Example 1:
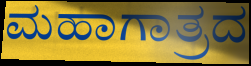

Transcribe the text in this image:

ಮಹಾಗಾತ್ರದ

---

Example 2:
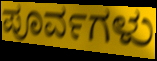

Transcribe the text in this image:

ಪೂರ್ವಗಳು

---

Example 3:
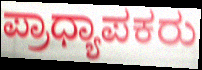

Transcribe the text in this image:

ಪ್ರಾಧ್ಯಾಪಕರು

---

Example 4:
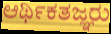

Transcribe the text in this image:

ಆರ್ಥಿಕತಜ್ಞರು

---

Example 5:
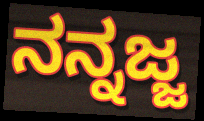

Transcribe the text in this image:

ನನ್ನಜ್ಜ